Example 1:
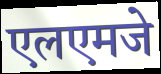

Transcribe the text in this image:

एलएमजे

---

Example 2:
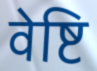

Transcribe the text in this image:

वेष्टि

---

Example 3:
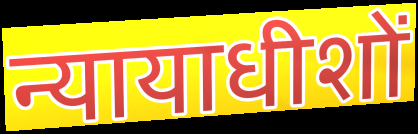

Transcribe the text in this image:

न्यायाधीशों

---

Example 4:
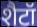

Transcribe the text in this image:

शैटॉ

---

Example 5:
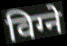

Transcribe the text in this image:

विग्ने